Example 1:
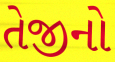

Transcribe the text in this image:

તેજીનો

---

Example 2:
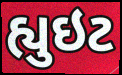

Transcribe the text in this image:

હ્યુઇટ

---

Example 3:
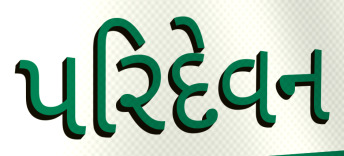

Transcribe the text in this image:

પરિદેવન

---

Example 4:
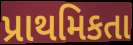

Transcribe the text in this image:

પ્રાથમિકતા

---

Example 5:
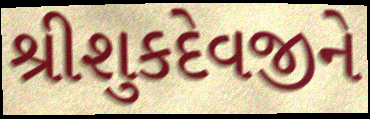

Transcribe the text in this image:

શ્રીશુકદેવજીને